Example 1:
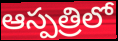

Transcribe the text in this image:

ఆస్పత్రిలో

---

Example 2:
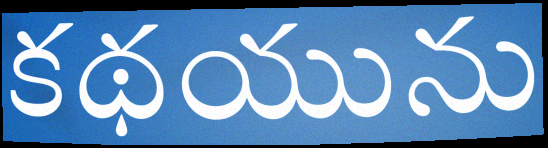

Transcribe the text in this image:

కథయును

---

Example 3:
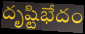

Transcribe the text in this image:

దృష్టిభేదం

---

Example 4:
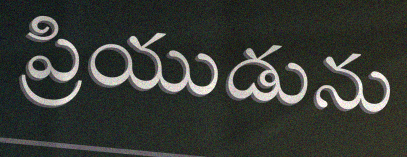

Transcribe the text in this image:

ప్రియుడును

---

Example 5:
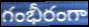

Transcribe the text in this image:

గంభీరంగా